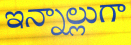
ఇన్నాల్లుగా